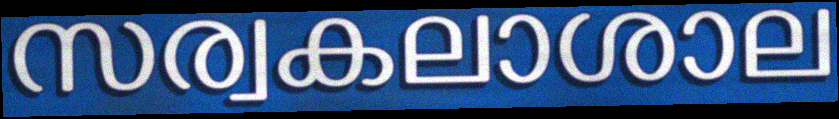
സര്വകലാശാല